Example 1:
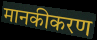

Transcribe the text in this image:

मानकीकरण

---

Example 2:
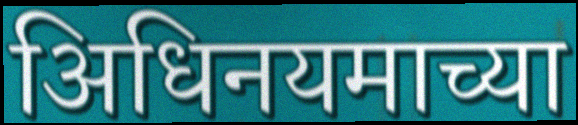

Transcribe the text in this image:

अिधिनयमाच्या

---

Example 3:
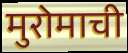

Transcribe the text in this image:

मुरोमाची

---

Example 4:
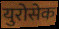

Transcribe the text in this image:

युरोसेक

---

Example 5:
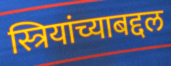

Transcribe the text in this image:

स्त्रियांच्याबद्दल